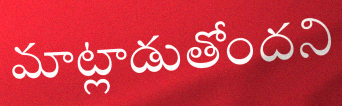
మాట్లాడుతోందని